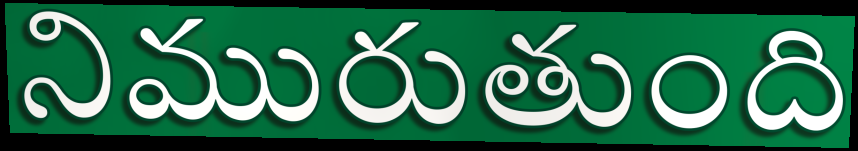
నిమురుతుంది